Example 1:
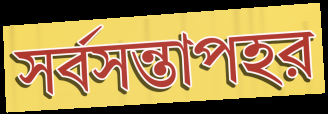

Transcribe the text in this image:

সর্বসন্তাপহর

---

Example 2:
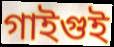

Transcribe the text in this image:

গাইগুই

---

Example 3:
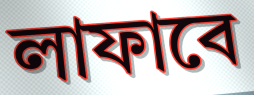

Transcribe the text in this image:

লাফাবে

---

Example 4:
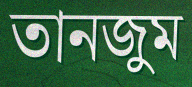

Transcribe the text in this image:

তানজুম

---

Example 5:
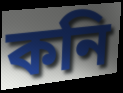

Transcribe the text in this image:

কনি